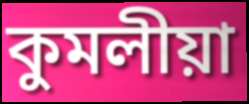
কুমলীয়া